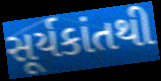
સૂર્યકાંતથી